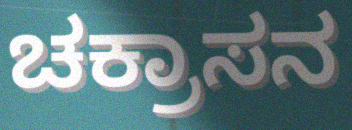
ಚಕ್ರಾಸನ